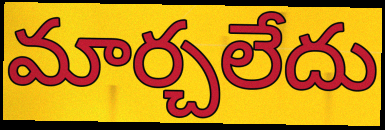
మార్చలేదు